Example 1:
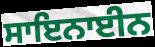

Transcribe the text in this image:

ਸਾਇਨਾਈਨ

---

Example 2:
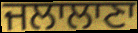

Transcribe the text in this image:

ਜਲਾਲਾਣਾ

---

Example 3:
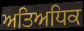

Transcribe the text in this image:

ਅਤਿਅਧਿਕ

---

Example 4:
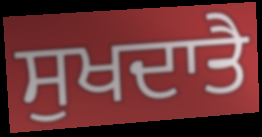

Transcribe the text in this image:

ਸੁਖਦਾਤੈ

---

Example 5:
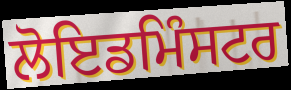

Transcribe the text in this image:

ਲੋਇਡਮਿੰਸਟਰ